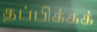
தப்பிக்கக்